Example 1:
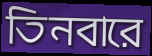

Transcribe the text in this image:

তিনবারে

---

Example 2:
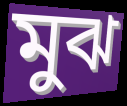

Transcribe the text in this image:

মুঝ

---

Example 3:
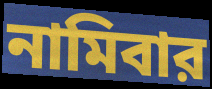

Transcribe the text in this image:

নামিবার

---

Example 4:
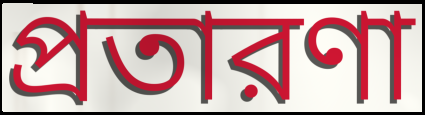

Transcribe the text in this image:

প্রতারণা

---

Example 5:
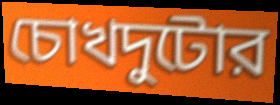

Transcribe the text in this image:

চোখদুটোর